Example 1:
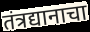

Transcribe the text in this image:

तंत्रद्यानाचा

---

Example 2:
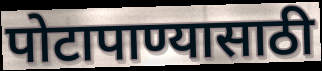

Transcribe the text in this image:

पोटापाण्यासाठी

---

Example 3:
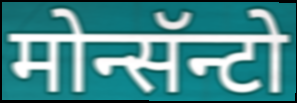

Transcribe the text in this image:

मोन्सॅन्टो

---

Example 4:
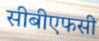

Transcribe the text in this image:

सीबीएफसी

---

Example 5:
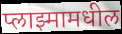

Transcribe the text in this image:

प्लाझ्मामधील